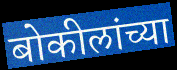
बोकीलांच्या